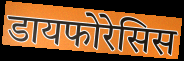
डायफोरेसिस